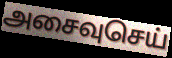
அசைவுசெய்